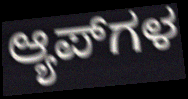
ಆ್ಯಪ್‌ಗಳ